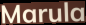
Marula